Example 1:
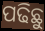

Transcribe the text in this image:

ପଢିଛୁ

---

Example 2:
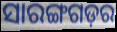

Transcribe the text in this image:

ସାରଙ୍ଗଗଡ଼ର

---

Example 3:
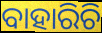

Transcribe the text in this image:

ବାହାରିଚି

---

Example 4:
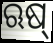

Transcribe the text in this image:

ଋଷ୍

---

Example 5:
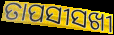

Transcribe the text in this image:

ତାପସୀସଖୀ